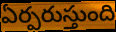
ఏర్పరుస్తుంది